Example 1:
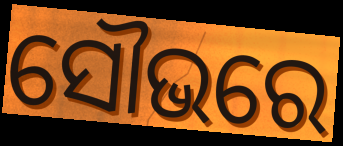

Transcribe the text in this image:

ସୌଭରେ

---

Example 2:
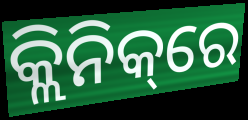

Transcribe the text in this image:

କ୍ଲିନିକ୍‌ରେ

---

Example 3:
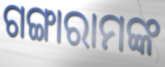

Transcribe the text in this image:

ଗଙ୍ଗାରାମଙ୍କ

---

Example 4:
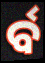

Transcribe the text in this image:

ର୍ବ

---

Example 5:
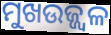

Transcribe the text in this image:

ମୁଖଉଜ୍ଜ୍ୱଳ